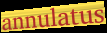
annulatus